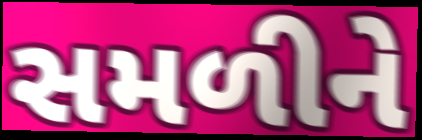
સમળીને